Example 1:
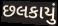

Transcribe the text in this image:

છલકાયું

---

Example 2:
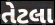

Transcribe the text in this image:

તેટલા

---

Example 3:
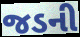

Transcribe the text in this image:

જડની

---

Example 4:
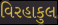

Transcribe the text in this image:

વિરહાકુલ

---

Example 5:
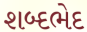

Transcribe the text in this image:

શબ્દભેદ